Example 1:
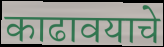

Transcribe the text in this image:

काढावयाचे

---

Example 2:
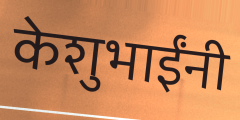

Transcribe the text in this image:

केशुभाईंनी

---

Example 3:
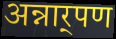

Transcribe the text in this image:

अन्नार्पण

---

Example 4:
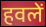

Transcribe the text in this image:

हवलें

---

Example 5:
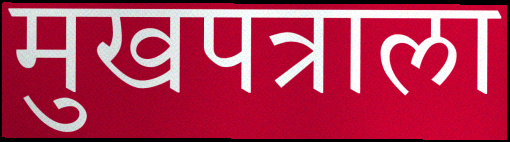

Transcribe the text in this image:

मुखपत्राला